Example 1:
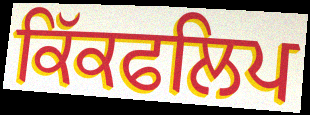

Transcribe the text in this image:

ਕਿੱਕਫਲਿਪ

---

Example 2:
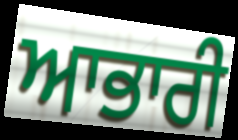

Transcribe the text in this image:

ਆਭਾਰੀ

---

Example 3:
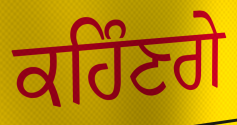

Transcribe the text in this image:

ਕਹਿੰਣਗੇ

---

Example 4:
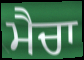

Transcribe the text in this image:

ਮੈਚਾ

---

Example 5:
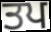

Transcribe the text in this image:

ਤਪ